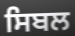
ਸਿਬਲ